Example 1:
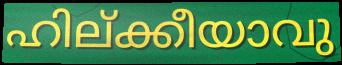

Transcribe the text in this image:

ഹില്ക്കീയാവു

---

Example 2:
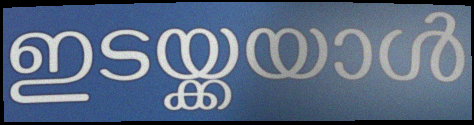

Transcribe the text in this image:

ഇടയ്ക്കയാൾ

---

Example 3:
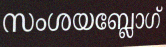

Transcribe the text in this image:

സംശയബ്ലോഗ്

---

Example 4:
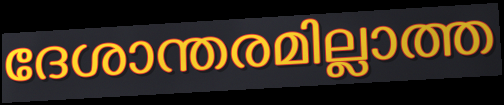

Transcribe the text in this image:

ദേശാന്തരമില്ലാത്ത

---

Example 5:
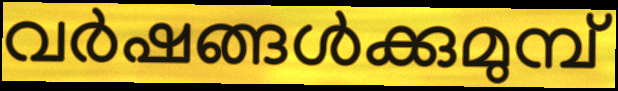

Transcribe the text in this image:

വർഷങ്ങൾക്കുമുമ്പ്